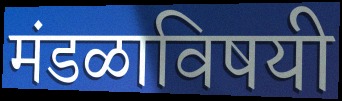
मंडळाविषयी